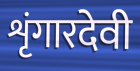
शृंगारदेवी